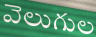
వెలుగుల